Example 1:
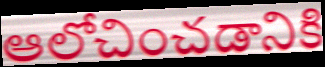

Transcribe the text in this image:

ఆలోచించడానికి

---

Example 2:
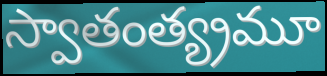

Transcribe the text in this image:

స్వాతంత్య్రమూ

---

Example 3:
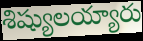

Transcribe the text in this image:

శిష్యులయ్యారు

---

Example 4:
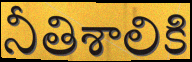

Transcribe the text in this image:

నీతిశాలికి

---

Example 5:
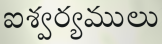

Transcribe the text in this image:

ఐశ్వర్యములు